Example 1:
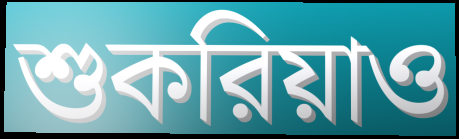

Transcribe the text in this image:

শুকরিয়াও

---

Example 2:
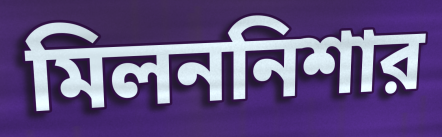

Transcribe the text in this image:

মিলননিশার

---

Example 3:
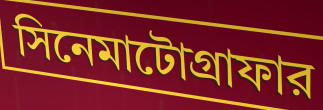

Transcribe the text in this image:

সিনেমাটোগ্রাফার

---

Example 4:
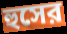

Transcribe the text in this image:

হুসের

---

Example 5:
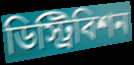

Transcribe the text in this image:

ডিস্ট্রিবিশন